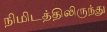
நிமிடத்திலிருந்து